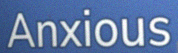
Anxious